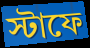
স্টাফে